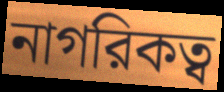
নাগরিকত্ব